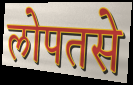
लोपतसे